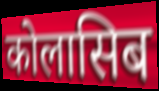
कोलासिब